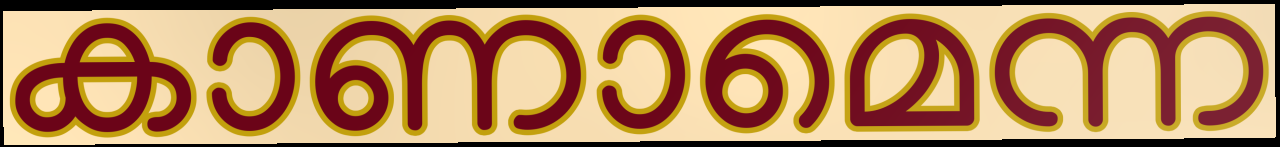
കാണാമെന്ന